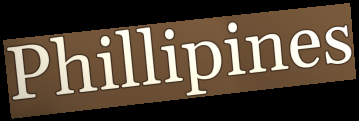
Phillipines